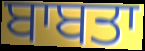
ਬਾਬਤਾ